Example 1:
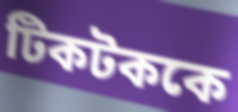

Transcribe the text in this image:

টিকটককে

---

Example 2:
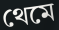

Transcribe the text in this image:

থেমে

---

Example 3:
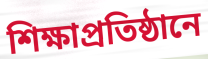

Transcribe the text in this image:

শিক্ষাপ্রতিষ্ঠানে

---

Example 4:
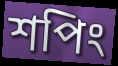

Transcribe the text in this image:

শপিং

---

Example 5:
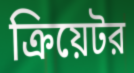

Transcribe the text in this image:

ক্রিয়েটর